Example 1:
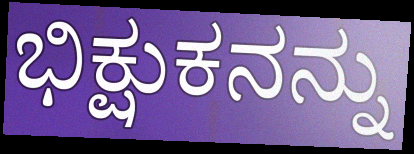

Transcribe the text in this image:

ಭಿಕ್ಷುಕನನ್ನು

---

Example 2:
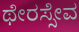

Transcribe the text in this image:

ಥೇರಸ್ಸೇವ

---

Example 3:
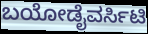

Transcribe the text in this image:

ಬಯೋಡೈವರ್ಸಿಟಿ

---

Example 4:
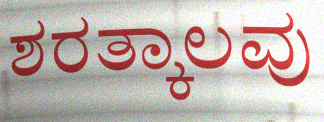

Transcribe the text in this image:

ಶರತ್ಕಾಲವು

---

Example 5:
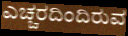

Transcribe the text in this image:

ಎಚ್ಚರದಿಂದಿರುವ